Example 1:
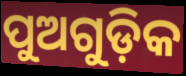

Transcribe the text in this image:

ପୁଅଗୁଡ଼ିକ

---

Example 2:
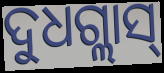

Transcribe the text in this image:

ଦୁଧଗ୍ଲାସ୍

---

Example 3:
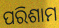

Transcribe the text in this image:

ପରିଶାମ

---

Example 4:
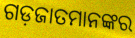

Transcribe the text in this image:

ଗଡ଼ଜାତମାନଙ୍କର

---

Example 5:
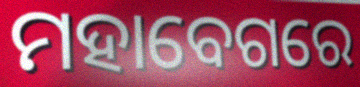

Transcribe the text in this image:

ମହାବେଗରେ